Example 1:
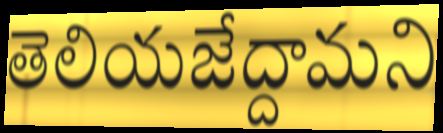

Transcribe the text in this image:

తెలియజేద్దామని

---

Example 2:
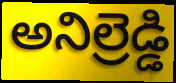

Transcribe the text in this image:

అనిల్రెడ్డి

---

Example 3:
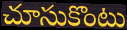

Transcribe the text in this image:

చూసుకొంటు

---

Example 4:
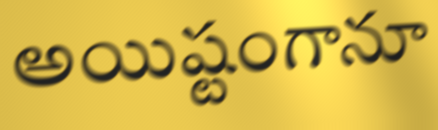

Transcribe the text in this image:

అయిష్టంగానూ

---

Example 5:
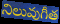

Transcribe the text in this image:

నిలువుగీత